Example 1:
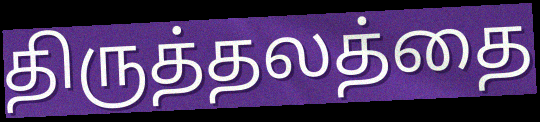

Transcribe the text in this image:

திருத்தலத்தை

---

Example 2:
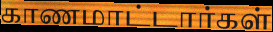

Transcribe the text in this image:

காணமாட்டார்கள்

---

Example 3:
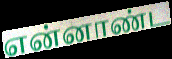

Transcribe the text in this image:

என்னாண்ட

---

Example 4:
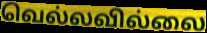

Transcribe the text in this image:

வெல்லவில்லை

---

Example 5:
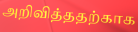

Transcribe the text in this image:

அறிவித்ததற்காக